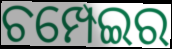
ଚମ୍ପେଇର